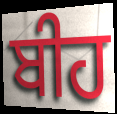
ਬੀਹ